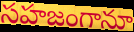
సహజంగానూ